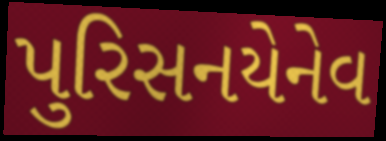
પુરિસનયેનેવ